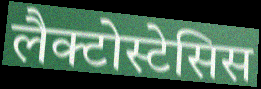
लैक्टोस्टेसिस